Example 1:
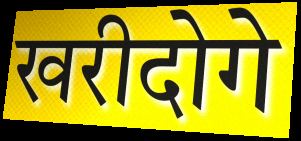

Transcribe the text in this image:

खरीदोगे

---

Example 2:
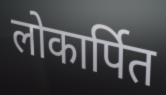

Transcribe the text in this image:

लोकार्पित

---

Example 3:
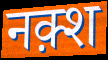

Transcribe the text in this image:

नक़्श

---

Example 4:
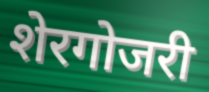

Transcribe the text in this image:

शेरगोजरी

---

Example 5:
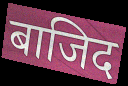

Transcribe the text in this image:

बाजिद